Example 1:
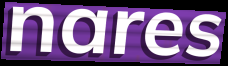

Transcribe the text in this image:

nares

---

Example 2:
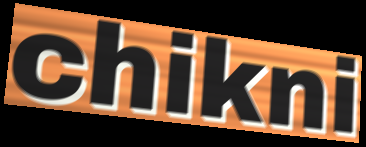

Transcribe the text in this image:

chikni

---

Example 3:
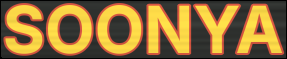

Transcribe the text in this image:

SOONYA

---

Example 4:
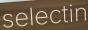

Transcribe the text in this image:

selectin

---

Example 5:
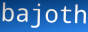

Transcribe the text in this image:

bajoth